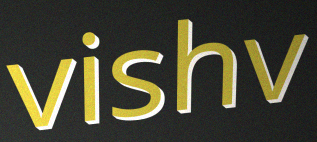
vishv